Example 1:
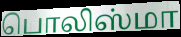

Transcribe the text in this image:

பொலிஸ்மா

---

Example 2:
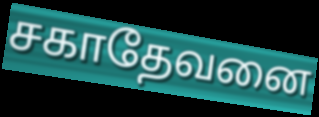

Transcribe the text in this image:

சகாதேவனை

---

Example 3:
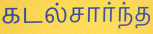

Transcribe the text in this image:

கடல்சார்ந்த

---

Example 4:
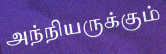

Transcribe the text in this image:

அந்நியருக்கும்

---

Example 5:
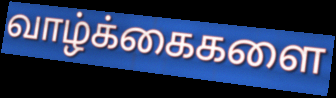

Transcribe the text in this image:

வாழ்க்கைகளை